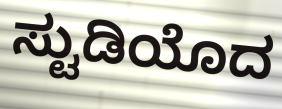
ಸ್ಟುಡಿಯೊದ